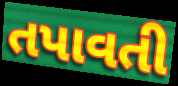
તપાવતી